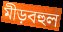
মীড়বহুল